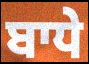
ਬਾਧੇ